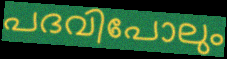
പദവിപോലും